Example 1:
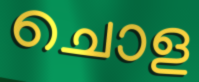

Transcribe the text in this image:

ചൊള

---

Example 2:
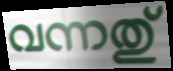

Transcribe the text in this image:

വന്നതു്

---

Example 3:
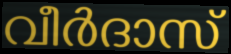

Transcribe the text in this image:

വീർദാസ്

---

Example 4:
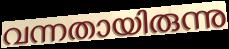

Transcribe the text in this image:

വന്നതായിരുന്നു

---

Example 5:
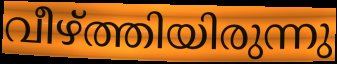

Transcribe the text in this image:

വീഴ്ത്തിയിരുന്നു